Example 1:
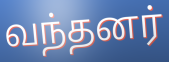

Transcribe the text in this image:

வந்தனர்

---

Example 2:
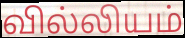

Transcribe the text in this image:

வில்லியம்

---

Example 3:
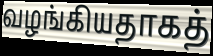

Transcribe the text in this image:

வழங்கியதாகத்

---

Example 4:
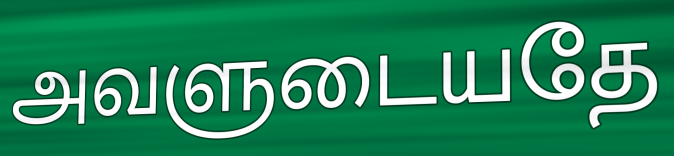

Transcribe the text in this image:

அவளுடையதே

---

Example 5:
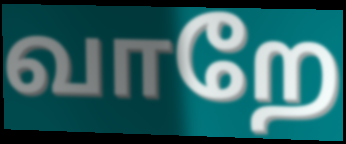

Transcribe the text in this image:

வாறே